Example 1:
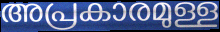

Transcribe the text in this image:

അപ്രകാരമുള്ള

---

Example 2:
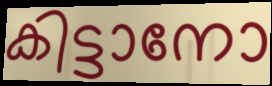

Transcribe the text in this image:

കിട്ടാനോ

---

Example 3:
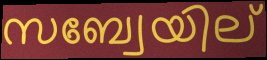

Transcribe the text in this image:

സബ്വേയില്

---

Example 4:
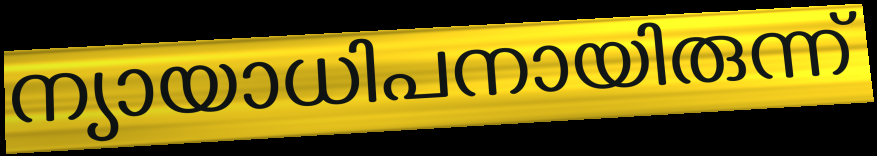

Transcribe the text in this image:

ന്യായാധിപനായിരുന്ന്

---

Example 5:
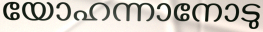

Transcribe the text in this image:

യോഹന്നാനോടു